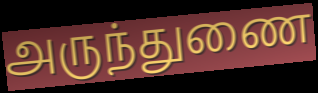
அருந்துணை